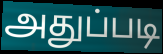
அதுப்படி